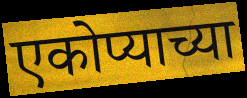
एकोप्याच्या